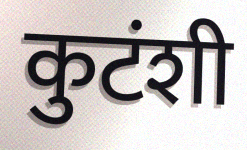
कुटंशी